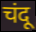
चंदू